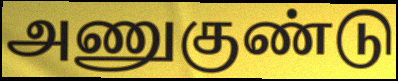
அணுகுண்டு